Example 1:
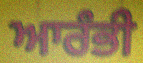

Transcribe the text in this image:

ਆਰੰਭੀ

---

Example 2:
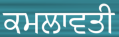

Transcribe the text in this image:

ਕਮਲਾਵਤੀ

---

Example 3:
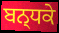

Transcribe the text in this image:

ਬਨ੍ਧਕੇ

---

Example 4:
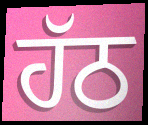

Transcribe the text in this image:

ਹੱਠ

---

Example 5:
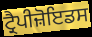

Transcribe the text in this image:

ਟ੍ਰੈਪੀਜ਼ੋਇਡਸ